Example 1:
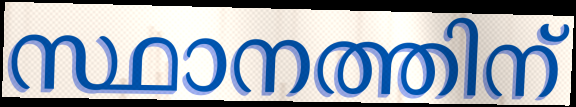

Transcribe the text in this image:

സ്ഥാനത്തിന്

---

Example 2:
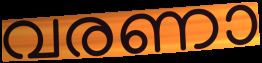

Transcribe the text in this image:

വരണാ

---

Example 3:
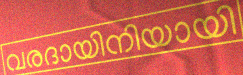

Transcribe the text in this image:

വരദായിനിയായി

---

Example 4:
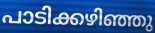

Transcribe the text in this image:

പാടിക്കഴിഞ്ഞു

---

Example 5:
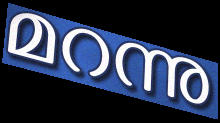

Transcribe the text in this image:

മറന്നു